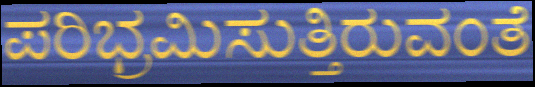
ಪರಿಭ್ರಮಿಸುತ್ತಿರುವಂತೆ